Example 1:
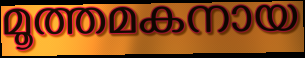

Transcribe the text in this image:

മൂത്തമകനായ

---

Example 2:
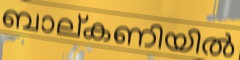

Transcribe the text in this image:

ബാല്കണിയിൽ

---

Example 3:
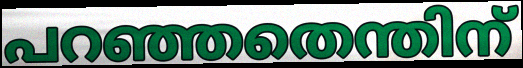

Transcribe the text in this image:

പറഞ്ഞതെന്തിന്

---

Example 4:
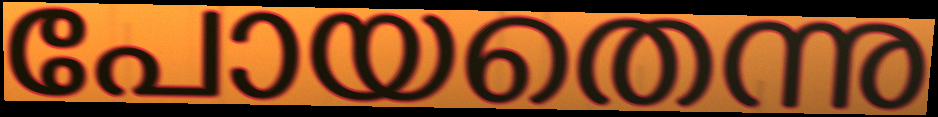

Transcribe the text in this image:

പോയതെന്നു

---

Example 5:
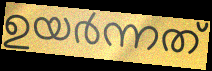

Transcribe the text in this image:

ഉയർന്നത്